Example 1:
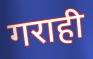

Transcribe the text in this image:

गराही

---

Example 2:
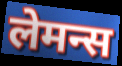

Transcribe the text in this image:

लेमन्स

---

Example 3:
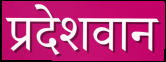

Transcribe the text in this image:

प्रदेशवान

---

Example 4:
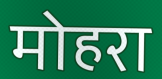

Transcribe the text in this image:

मोहरा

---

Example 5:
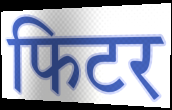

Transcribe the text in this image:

फिटर